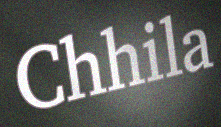
Chhila